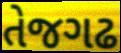
તેજગઢ